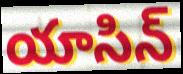
యాసిన్